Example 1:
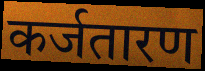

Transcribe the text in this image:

कर्जतारण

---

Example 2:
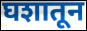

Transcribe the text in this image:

घशातून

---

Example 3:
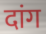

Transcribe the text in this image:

दांग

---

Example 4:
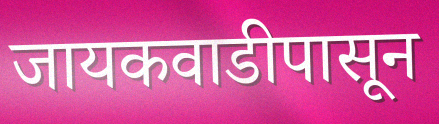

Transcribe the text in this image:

जायकवाडीपासून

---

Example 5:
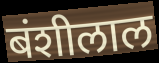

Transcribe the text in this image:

बंशीलाल